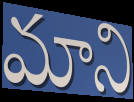
మాని